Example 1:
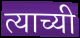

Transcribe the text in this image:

त्याच्यी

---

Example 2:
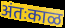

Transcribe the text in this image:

अंतःकाळ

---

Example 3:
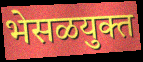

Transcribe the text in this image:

भेसळयुक्त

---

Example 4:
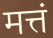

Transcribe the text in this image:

मत्तं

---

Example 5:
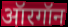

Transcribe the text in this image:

ऑरगॉन